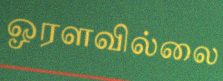
ஓரளவில்லை